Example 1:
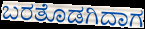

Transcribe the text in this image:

ಬರತೊಡಗಿದಾಗ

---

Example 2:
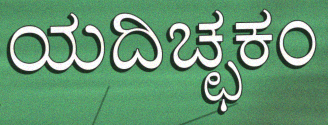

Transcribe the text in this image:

ಯದಿಚ್ಛಕಂ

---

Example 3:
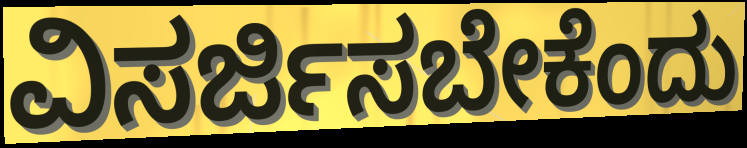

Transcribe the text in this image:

ವಿಸರ್ಜಿಸಬೇಕೆಂದು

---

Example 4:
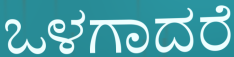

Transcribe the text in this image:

ಒಳಗಾದರೆ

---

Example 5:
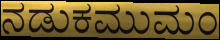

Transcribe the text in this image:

ನಡುಕಮುಮಂ